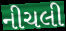
નીચલી